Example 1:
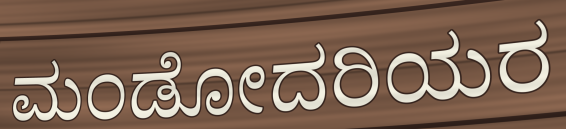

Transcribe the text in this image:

ಮಂಡೋದರಿಯರ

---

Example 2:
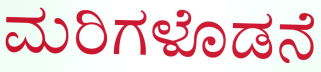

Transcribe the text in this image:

ಮರಿಗಳೊಡನೆ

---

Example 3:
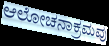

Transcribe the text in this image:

ಆಲೋಚನಾಕ್ರಮವು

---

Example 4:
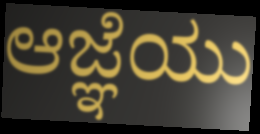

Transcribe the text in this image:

ಆಜ್ಞೆಯು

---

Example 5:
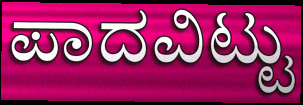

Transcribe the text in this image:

ಪಾದವಿಟ್ಟು